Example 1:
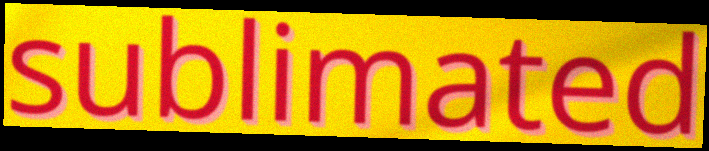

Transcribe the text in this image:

sublimated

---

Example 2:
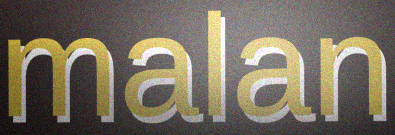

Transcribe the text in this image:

malan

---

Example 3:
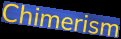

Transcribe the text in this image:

Chimerism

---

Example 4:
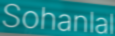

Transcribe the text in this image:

Sohanlal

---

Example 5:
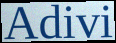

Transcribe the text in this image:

Adivi